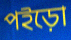
পইড়ো